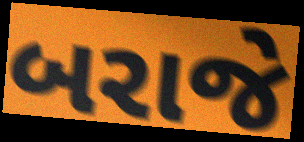
બરાજે